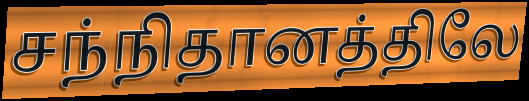
சந்நிதானத்திலே